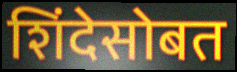
शिंदेसोबत